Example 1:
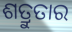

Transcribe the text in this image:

ଶତ୍ରୁତାର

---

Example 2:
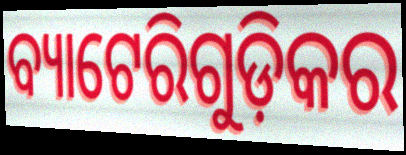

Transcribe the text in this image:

ବ୍ୟାଟେରିଗୁଡ଼ିକର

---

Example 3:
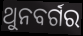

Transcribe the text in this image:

ଥୁନବର୍ଗର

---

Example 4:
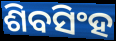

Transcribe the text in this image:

ଶିବସିଂହ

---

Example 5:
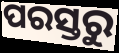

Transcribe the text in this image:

ପରସ୍ତରୁ